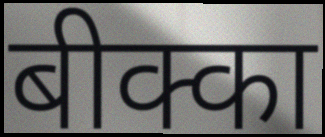
बीक्का